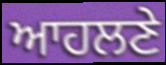
ਆਹਲਣੇ